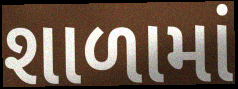
શાળામાં